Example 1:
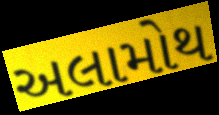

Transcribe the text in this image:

અલામોથ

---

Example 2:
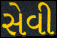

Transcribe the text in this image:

સેવી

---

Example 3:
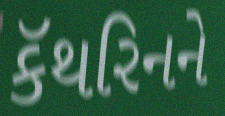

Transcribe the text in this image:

કૅથરિનને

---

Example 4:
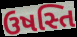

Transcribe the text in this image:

ઉષસ્તિ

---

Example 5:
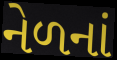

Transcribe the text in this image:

નેળનાં